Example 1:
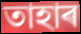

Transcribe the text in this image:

তাহাৰ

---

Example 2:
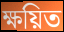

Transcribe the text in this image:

ক্ষয়িত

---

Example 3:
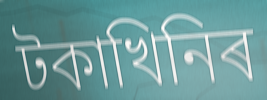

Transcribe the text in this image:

টকাখিনিৰ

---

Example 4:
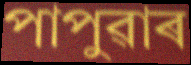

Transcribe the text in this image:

পাপুৱাৰ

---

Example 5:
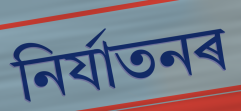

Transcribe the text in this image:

নিৰ্যাতনৰ